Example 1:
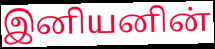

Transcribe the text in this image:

இனியனின்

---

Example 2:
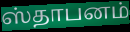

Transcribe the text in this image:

ஸ்தாபனம்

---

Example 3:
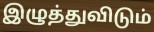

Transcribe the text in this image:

இழுத்துவிடும்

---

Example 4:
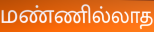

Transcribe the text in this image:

மண்ணில்லாத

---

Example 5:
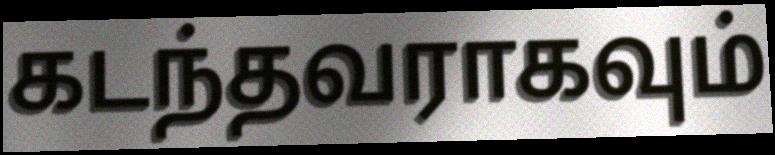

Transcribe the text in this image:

கடந்தவராகவும்